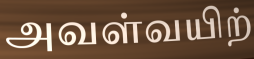
அவள்வயிற்